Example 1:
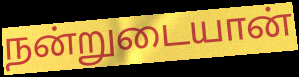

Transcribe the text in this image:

நன்றுடையான்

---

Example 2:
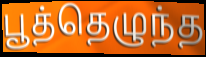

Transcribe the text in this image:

பூத்தெழுந்த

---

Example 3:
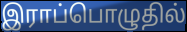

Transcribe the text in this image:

இராப்பொழுதில்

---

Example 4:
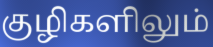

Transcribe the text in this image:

குழிகளிலும்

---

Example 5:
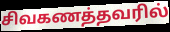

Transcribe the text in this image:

சிவகணத்தவரில்